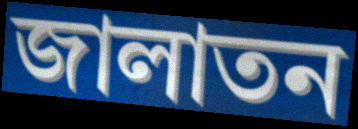
জালাতন